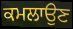
ਕਮਲਾਉਣ